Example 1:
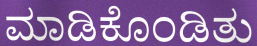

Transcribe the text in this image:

ಮಾಡಿಕೊಂಡಿತು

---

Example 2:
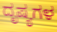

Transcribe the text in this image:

ದೃಷ್ಯಗಳ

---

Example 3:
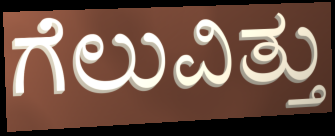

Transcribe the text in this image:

ಗೆಲುವಿತ್ತು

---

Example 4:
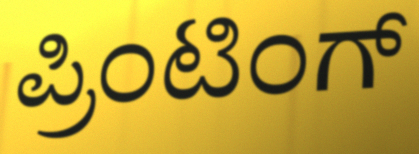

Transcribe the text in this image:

ಪ್ರಿಂಟಿಂಗ್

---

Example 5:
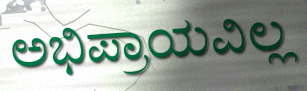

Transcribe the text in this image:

ಅಭಿಪ್ರಾಯವಿಲ್ಲ